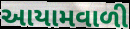
આયામવાળી